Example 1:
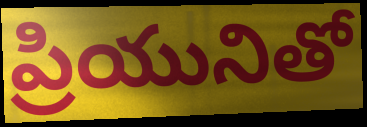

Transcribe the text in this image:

ప్రియునితో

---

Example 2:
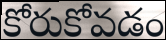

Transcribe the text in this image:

కోరుకోవడం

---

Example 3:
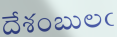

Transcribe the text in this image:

దేశంబులఁ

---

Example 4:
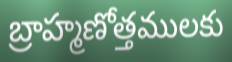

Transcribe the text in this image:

బ్రాహ్మణోత్తములకు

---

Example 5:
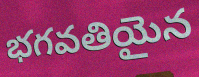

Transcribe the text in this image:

భగవతియైన